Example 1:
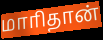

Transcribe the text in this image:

மாரிதான்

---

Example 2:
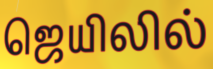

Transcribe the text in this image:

ஜெயிலில்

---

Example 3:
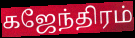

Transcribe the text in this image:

கஜேந்திரம்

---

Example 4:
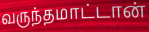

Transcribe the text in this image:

வருந்தமாட்டான்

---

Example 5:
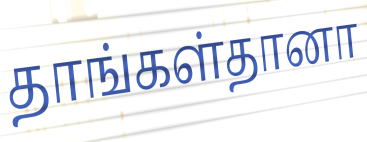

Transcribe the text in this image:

தாங்கள்தானா